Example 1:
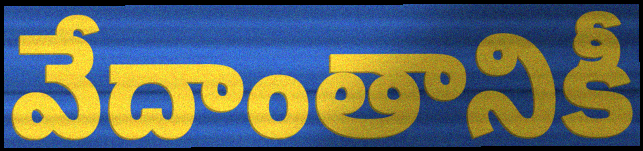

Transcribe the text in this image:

వేదాంతానికీ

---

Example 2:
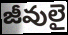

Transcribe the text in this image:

జీవులై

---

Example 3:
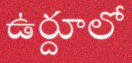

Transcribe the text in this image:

ఉర్దూలో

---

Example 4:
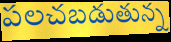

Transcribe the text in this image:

పలచబడుతున్న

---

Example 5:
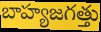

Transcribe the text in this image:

బాహ్యజగత్తు